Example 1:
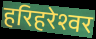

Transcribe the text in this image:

हरिहरेश्वर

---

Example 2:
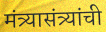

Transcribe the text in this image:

मंत्र्यासंत्र्यांची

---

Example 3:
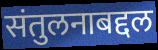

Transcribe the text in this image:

संतुलनाबद्दल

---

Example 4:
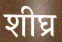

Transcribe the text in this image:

शीघ्र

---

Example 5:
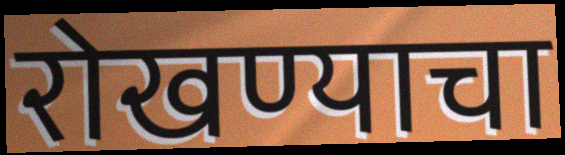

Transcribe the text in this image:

रोखण्याचा